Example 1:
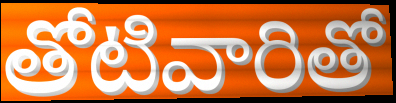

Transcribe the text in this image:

తోటివారితో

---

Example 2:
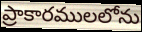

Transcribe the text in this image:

ప్రాకారములలోను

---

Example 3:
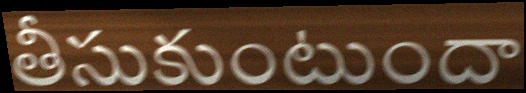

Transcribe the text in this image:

తీసుకుంటుందా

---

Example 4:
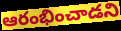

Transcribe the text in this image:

ఆరంభించాడని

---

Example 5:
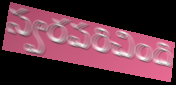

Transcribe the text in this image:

స్వరపరిచింది